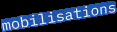
mobilisations